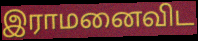
இராமனைவிட